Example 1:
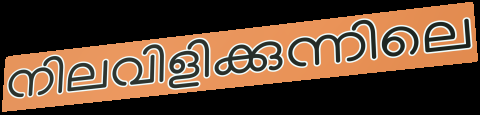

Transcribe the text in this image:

നിലവിളിക്കുന്നിലെ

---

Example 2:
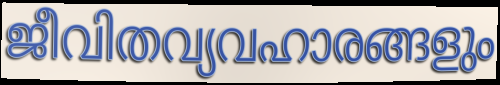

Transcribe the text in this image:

ജീവിതവ്യവഹാരങ്ങളും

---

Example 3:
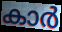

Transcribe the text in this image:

കാർ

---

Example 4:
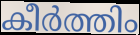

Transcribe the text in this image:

കീർത്തിം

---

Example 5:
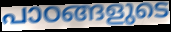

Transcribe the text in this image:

പാഠങ്ങളുടെ